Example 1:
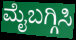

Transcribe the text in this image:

ಮೈಬಗ್ಗಿಸಿ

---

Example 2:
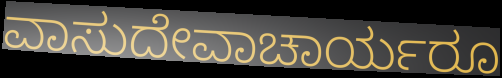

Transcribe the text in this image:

ವಾಸುದೇವಾಚಾರ್ಯರೂ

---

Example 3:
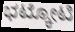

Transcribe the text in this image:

ಭಟ್ಕೋಟಿ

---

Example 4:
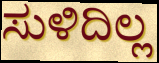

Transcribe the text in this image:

ಸುಳಿದಿಲ್ಲ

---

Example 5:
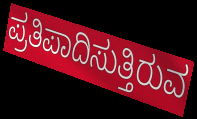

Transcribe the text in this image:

ಪ್ರತಿಪಾದಿಸುತ್ತಿರುವ